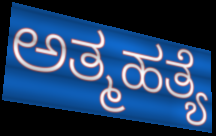
ಅತ್ಮಹತ್ಯೆ